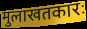
मुलाखतकारः